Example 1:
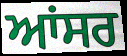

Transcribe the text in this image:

ਆਂਸਰ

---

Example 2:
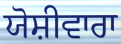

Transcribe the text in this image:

ਯੋਸ਼ੀਵਾਰਾ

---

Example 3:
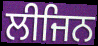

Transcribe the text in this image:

ਲੀਜਿਨ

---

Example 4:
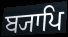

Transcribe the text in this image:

ਬ੍ਯਾਪਿ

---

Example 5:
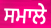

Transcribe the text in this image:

ਸਮਾਲੇ